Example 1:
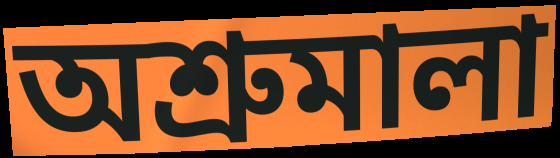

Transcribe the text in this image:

অশ্রুমালা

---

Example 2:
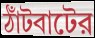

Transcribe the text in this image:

ঠাঁটবাটের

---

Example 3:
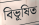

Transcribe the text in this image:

বিভূষিত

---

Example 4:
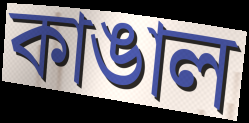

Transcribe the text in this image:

কাঙাল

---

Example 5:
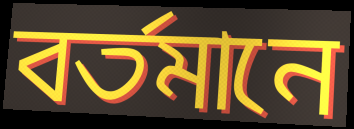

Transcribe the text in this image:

বর্তমানে